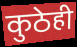
कुठेही